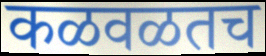
कळवळतच